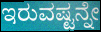
ಇರುವಷ್ಟನ್ನೇ